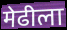
मेढीला